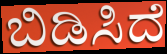
ಬಿಡಿಸಿದೆ